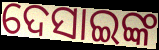
ଦେସାଇଙ୍କ